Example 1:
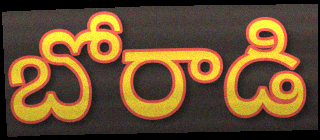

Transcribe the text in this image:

బోరాడి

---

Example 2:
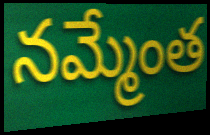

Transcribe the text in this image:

నమ్మేంత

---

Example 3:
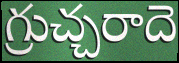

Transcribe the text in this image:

గ్రుచ్చరాదె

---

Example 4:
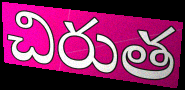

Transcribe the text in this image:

చిరుత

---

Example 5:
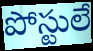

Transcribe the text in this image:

పోస్టులే